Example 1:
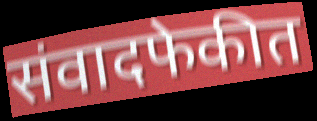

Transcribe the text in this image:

संवादफेकीत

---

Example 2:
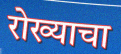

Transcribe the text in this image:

रोख्याचा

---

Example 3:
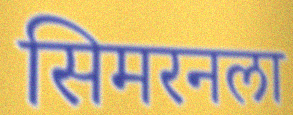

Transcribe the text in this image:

सिमरनला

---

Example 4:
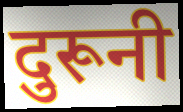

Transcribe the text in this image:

दुरूनी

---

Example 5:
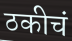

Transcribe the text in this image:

ठकीचं